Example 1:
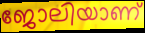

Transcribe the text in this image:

ജോലിയാണ്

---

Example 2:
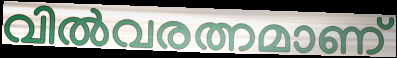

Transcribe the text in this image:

വിൽവരത്നമാണ്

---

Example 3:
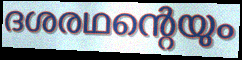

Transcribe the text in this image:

ദശരഥന്റെയും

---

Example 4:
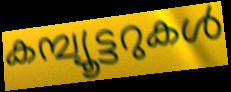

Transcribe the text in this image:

കമ്പ്യൂട്ടറുകൾ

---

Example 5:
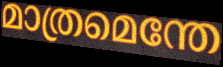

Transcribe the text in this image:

മാത്രമെന്തേ